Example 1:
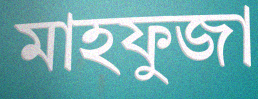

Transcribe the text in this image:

মাহফুজা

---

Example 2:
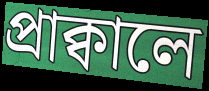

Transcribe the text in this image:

প্রাক্বালে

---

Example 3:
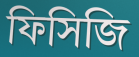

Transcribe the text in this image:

ফিসিজি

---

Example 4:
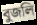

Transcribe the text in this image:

বুজলি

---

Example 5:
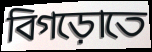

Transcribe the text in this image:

বিগড়োতে